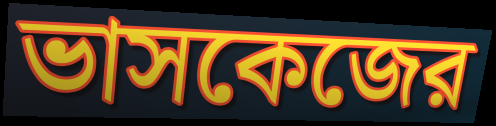
ভাসকেজের